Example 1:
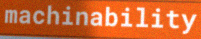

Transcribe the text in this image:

machinability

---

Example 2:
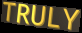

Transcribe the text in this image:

TRULY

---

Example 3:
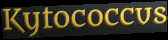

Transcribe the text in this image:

Kytococcus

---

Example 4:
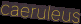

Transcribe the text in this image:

caeruleus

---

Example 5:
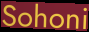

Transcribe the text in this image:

Sohoni